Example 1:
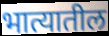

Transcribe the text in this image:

भात्यातील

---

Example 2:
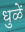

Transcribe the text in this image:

धुळें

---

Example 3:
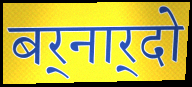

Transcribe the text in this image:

बर्नार्दो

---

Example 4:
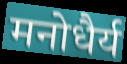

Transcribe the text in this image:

मनोधैर्य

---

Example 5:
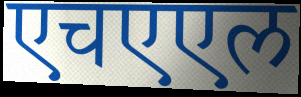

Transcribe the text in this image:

एचएएल